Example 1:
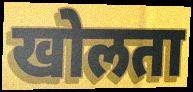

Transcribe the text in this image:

खोलता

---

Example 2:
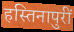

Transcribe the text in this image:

हस्तिनापुरीं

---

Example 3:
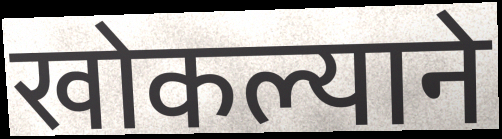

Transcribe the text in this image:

खोकल्याने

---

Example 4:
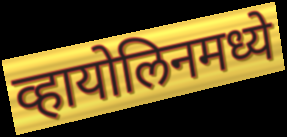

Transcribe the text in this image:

व्हायोलिनमध्ये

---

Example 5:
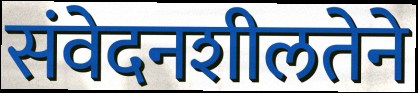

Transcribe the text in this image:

संवेदनशीलतेने